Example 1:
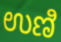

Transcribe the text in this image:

ಉಣಿ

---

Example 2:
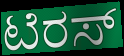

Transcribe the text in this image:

ಟೆರಸ್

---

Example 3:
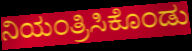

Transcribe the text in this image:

ನಿಯಂತ್ರಿಸಿಕೊಂಡು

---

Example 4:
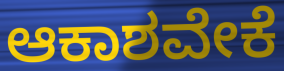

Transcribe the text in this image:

ಆಕಾಶವೇಕೆ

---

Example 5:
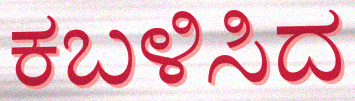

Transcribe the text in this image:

ಕಬಳಿಸಿದ